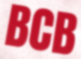
BCB